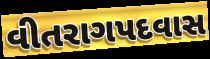
વીતરાગપદવાસ